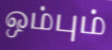
ஒம்பும்